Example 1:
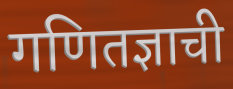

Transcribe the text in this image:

गणितज्ञाची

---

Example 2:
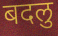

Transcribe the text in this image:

बदलु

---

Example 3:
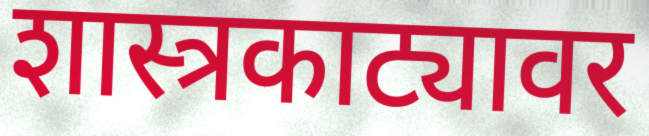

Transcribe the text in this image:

शास्त्रकाट्यावर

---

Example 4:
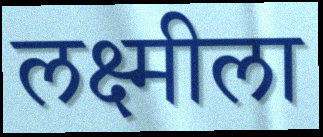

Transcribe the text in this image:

लक्ष्मीला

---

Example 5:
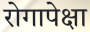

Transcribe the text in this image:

रोगापेक्षा